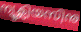
ന്യൂക്ലിയസിനു